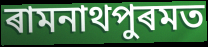
ৰামনাথপুৰমত